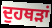
ਦੁਹਥੜਾਂ